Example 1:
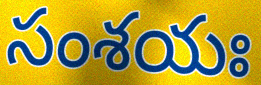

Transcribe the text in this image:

సంశయః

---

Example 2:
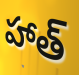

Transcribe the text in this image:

హాత్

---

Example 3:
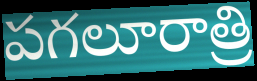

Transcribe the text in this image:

పగలూరాత్రి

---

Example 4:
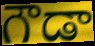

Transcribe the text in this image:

గౌడా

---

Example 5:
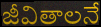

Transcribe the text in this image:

జీవితాలనే